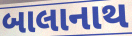
બાલાનાથ